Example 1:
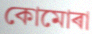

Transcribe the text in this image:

কোমোৰা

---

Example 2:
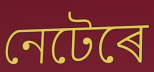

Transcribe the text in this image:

নেটেৰে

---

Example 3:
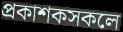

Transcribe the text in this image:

প্ৰকাশকসকলে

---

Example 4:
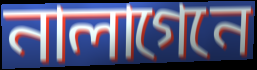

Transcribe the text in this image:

নালাগেনে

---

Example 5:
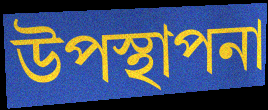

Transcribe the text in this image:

উপস্থাপনা